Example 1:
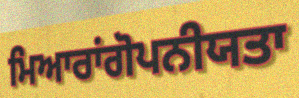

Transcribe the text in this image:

ਮਿਆਰਾਂਗੋਪਨੀਯਤਾ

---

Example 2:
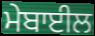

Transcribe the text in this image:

ਮੇਬਾਈਲ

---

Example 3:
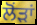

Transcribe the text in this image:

ਲੋਂੜਾਂ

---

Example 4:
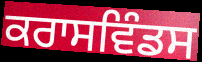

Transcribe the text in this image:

ਕਰਾਸਵਿੰਡਸ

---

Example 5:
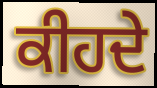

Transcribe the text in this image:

ਕੀਹਦੇ